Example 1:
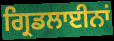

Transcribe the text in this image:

ਗ੍ਰਿਡਲਾਈਨਾਂ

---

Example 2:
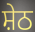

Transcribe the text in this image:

ਸ਼ੇਠ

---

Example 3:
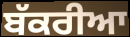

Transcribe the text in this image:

ਬੱਕਰੀਆ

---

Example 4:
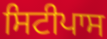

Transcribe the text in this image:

ਸਿਟੀਪਾਸ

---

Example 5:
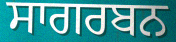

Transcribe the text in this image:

ਸਾਗਰਬਨ